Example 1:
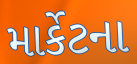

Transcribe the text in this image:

માર્કેટના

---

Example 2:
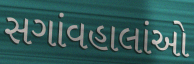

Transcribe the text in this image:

સગાંવહાલાંઓ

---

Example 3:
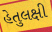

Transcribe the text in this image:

હેતુલક્ષી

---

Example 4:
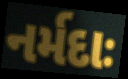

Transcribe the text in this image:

નર્મદાઃ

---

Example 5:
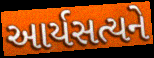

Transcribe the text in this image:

આર્યસત્યને